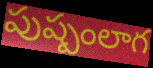
పుష్పంలాగ